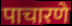
पाचारणे